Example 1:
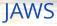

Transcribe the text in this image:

JAWS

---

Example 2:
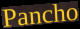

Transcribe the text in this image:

Pancho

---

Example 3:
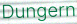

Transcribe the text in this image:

Dungern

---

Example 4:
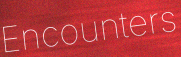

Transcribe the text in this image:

Encounters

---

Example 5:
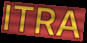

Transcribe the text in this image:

ITRA